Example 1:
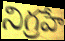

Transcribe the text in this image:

నిగ్రహే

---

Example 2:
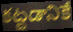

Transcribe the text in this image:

కట్టడానికే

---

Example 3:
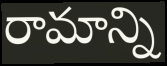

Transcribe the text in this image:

రామాన్ని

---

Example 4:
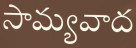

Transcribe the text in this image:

సామ్యవాద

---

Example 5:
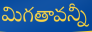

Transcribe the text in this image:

మిగతావన్నీ